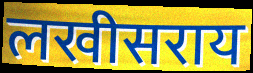
लखीसराय